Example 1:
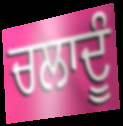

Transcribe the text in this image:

ਚਲਾਦੂੰ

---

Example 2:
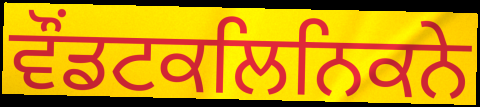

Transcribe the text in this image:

ਵੌਂਡਟਕਲਿਨਿਕਨੇ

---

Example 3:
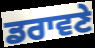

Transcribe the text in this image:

ਡਰਾਵਣੇ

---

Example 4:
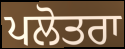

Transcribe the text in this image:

ਪਲੋਤਰਾ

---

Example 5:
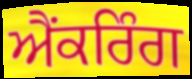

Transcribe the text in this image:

ਐਂਕਰਿੰਗ